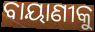
ବାୟାଣୀକୁ